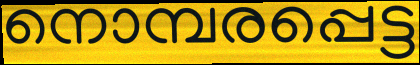
നൊമ്പരപ്പെട്ട